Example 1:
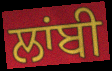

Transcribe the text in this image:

ਲਾਂਬੀ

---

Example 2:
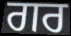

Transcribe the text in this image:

ਗਰ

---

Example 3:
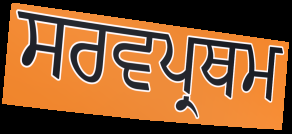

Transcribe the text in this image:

ਸਰਵਪ੍ਰਥਮ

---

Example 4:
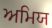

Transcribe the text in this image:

ਅਮਿਯ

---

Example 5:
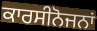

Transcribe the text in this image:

ਕਾਰਸੀਨੋਜਨਾਂ